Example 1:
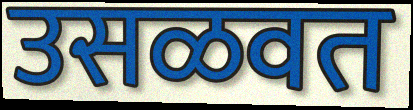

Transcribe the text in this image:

उसळवत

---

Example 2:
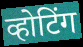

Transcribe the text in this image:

व्होटिंग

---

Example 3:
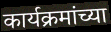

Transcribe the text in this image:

कार्यक्रमांच्या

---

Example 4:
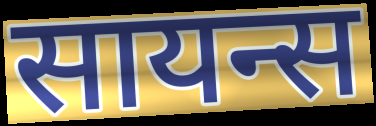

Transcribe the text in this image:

सायन्स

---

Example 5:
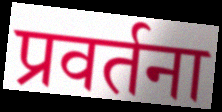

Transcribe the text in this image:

प्रवर्तना